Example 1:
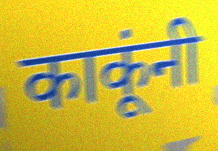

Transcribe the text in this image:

काकूंनी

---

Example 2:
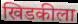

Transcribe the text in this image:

खिडकीला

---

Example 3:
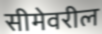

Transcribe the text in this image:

सीमेवरील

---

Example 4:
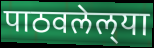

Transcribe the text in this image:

पाठवलेल्या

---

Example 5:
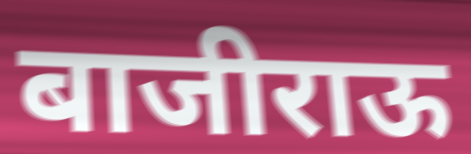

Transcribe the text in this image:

बाजीराऊ